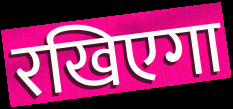
रखिएगा